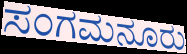
ಸಂಗಮನೂರು